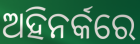
ଅହିନର୍କରେ